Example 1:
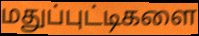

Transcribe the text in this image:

மதுப்புட்டிகளை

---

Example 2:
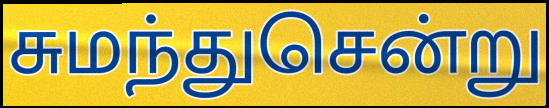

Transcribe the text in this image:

சுமந்துசென்று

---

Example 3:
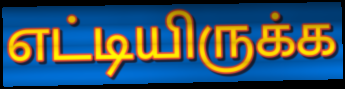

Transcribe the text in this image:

எட்டியிருக்க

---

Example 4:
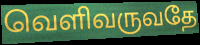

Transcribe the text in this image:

வெளிவருவதே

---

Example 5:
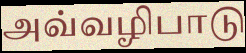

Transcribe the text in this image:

அவ்வழிபாடு